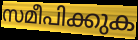
സമീപിക്കുക